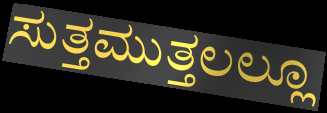
ಸುತ್ತಮುತ್ತಲಲ್ಲೂ